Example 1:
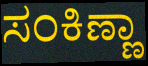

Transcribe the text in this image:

ಸಂಕಿಣ್ಣಾ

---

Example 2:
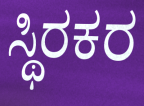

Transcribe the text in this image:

ಸ್ಥಿರಕರ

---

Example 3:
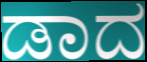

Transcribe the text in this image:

ಡಾದ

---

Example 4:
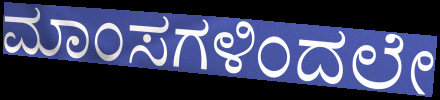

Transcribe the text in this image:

ಮಾಂಸಗಳಿಂದಲೇ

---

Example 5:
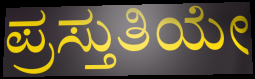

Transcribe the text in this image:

ಪ್ರಸ್ತುತಿಯೇ